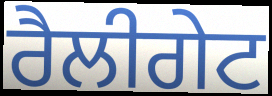
ਰੈਲੀਗੇਟ